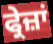
ਫ੍ਰੇਜ਼ਾਂ